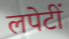
लपेटीं